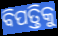
ବିପତ୍ତିକୁ